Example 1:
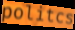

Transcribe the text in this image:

politcs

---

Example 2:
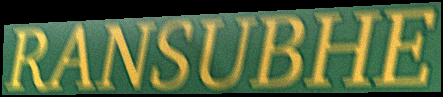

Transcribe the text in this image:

RANSUBHE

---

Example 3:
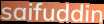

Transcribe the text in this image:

saifuddin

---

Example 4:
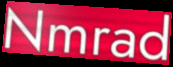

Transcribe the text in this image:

Nmrad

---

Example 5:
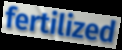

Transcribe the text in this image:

fertilized